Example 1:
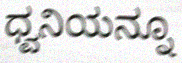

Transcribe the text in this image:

ಧ್ವನಿಯನ್ನೂ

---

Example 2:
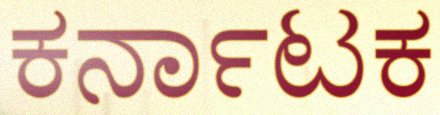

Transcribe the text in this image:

ಕರ್ನಾಟಕ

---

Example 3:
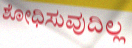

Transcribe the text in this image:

ಶೋಧಿಸುವುದಿಲ್ಲ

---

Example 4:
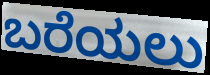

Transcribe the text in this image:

ಬರೆಯಲು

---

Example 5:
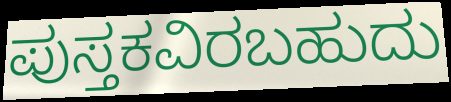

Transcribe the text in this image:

ಪುಸ್ತಕವಿರಬಹುದು